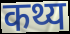
कथ्य